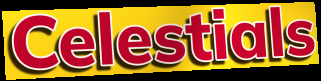
Celestials